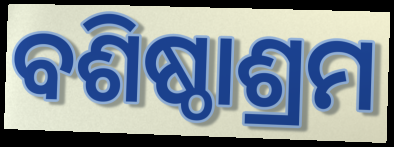
ବଶିଷ୍ଠାଶ୍ରମ